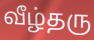
வீழ்தரு